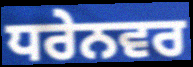
ਧਰੇਨਵਰ